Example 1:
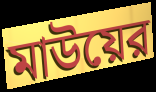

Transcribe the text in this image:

মাউয়ের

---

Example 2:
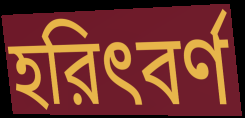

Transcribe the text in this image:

হরিৎবর্ণ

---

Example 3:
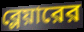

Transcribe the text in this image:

ব্লেয়ারের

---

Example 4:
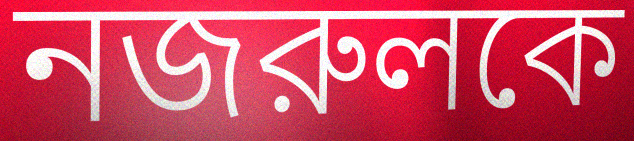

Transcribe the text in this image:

নজরুলকে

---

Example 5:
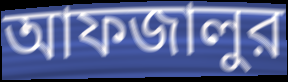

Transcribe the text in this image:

আফজালুর